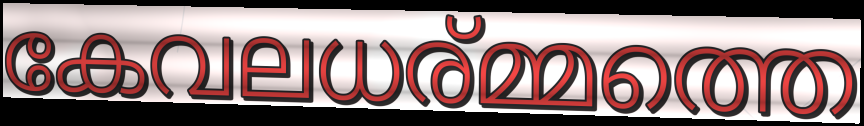
കേവലധര്മ്മത്തെ